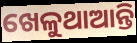
ଖେଳୁଥାଆନ୍ତି